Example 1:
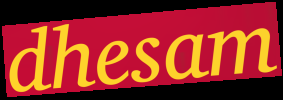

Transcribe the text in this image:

dhesam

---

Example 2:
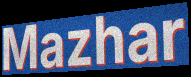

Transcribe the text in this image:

Mazhar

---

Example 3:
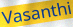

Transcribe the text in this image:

Vasanthi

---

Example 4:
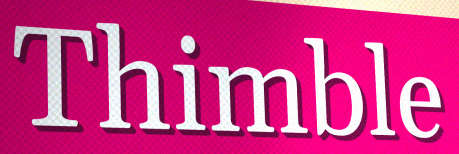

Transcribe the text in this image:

Thimble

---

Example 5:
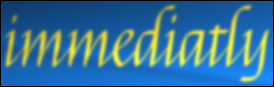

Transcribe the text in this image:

immediatly